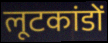
लूटकांडों